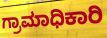
ಗ್ರಾಮಾಧಿಕಾರಿ